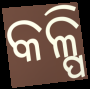
କଳ୍ପି